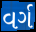
વર્ગ